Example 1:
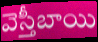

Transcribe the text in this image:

వెస్తీబాయి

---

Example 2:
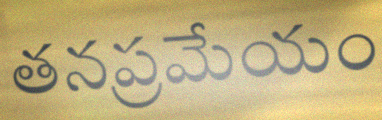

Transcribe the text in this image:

తనప్రమేయం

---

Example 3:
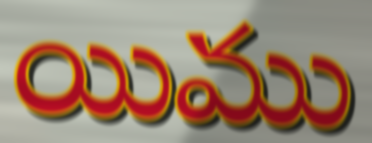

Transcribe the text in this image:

యిము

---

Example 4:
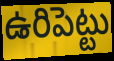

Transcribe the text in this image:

ఉరిపెట్టు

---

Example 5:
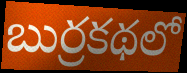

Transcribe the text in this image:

బుర్రకథలో